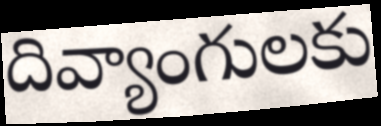
దివ్యాంగులకు